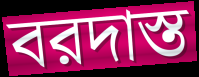
বরদাস্ত